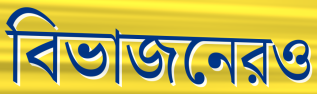
বিভাজনেরও